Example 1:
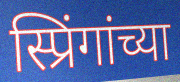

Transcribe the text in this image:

स्प्रिंगांच्या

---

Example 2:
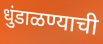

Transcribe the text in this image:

धुंडाळण्याची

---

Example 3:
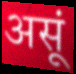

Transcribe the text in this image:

असूं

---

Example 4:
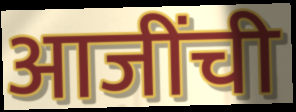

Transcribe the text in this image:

आजींची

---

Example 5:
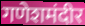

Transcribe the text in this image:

गणेशमंदीर